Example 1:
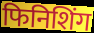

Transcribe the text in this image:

फिनिशिंग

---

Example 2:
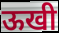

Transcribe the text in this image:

ऊखी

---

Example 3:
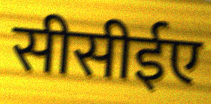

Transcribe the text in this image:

सीसीईए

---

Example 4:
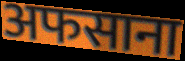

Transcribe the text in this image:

अफसाना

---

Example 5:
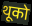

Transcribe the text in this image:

थूको